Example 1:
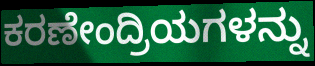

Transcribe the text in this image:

ಕರಣೇಂದ್ರಿಯಗಳನ್ನು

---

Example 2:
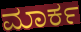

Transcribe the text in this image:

ಮಾರ್ಕ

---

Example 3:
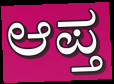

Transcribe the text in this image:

ಆಪ್ತ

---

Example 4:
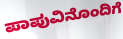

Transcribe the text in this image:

ಪಾಪುವಿನೊಂದಿಗೆ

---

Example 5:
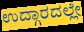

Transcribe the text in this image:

ಉದ್ಗಾರದಲ್ಲೇ